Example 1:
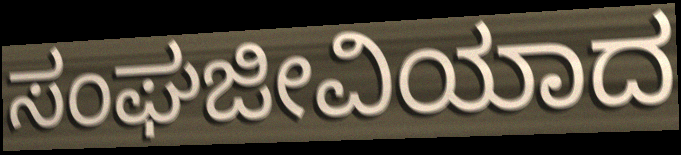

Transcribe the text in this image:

ಸಂಘಜೀವಿಯಾದ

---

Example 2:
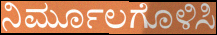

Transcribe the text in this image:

ನಿರ್ಮೂಲಗೊಳಿಸಿ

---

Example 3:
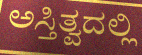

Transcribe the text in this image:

ಅಸ್ತಿತ್ವದಲ್ಲಿ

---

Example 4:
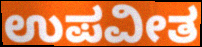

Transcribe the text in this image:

ಉಪವೀತ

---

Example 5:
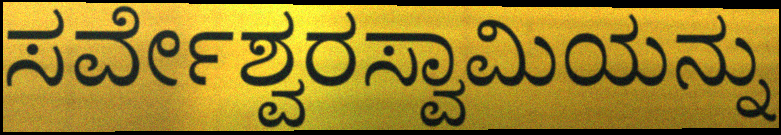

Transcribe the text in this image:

ಸರ್ವೇಶ್ವರಸ್ವಾಮಿಯನ್ನು